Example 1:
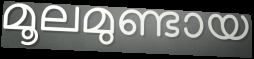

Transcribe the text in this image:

മൂലമുണ്ടായ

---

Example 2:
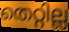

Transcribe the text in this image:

തെറ്റില്ല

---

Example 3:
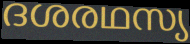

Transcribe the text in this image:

ദശരഥസ്യ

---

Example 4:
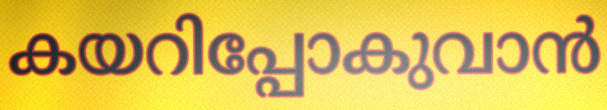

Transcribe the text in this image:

കയറിപ്പോകുവാൻ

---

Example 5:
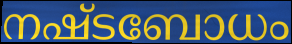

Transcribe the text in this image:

നഷ്ടബോധം